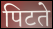
पिटते